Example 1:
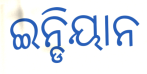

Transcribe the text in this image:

ଇନ୍ଡିୟାନ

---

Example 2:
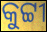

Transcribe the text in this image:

କୁଟ୍ଟୀ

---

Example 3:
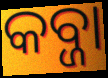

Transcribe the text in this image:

କବ୍ଜା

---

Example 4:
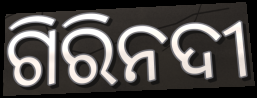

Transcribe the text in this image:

ଗିରିନଦୀ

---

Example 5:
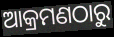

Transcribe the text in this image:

ଆକ୍ରମଣଠାରୁ